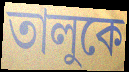
তালুকে